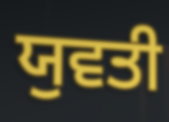
ਯੁਵਤੀ